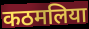
कठमलिया